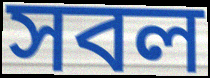
সবল